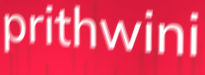
prithwini